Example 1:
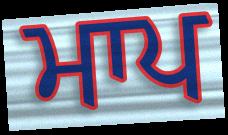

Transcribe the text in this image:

ਮਾਪ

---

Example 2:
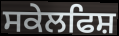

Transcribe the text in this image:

ਸਕੇਲਫਿਸ਼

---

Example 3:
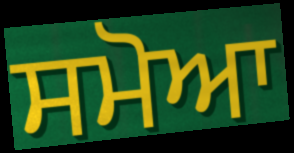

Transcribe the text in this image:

ਸਮੋਆ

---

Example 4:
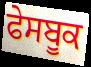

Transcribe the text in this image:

ਫੇਸਬੂਕ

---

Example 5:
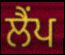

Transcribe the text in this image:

ਲੈਂਪ